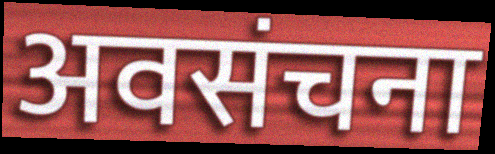
अवसंचना